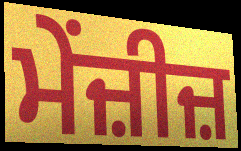
ਮੇਂਜ਼ੀਜ਼